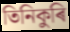
তিনিকুৰি